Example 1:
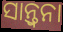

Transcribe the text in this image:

ସାନ୍ତ୍ଵନା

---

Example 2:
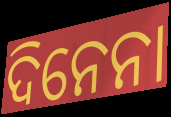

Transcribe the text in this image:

ଦିନେନା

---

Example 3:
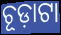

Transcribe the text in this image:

ଚୂଡ଼ାଟା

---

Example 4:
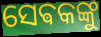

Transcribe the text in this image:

ସେଵକଙ୍କୁ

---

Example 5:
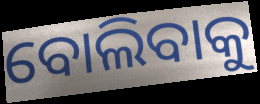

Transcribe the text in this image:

ବୋଲିବାକୁ